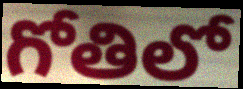
గోతిలో